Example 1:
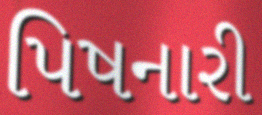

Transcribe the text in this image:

પિષનારી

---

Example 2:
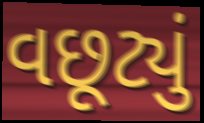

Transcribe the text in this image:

વછૂટ્યું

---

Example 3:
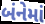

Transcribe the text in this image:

બંનેમાં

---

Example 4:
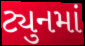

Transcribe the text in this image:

ટ્યુનમાં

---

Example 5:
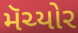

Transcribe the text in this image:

મૅચ્યોર